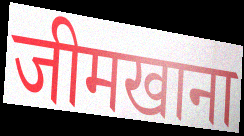
जीमखाना